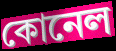
কোনেল